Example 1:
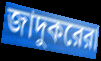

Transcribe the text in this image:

জাদুকরেরা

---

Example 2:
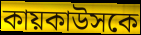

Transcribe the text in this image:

কায়কাউসকে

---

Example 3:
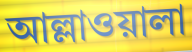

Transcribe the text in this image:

আল্লাওয়ালা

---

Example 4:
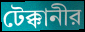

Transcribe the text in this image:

টেক্কানীর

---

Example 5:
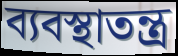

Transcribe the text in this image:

ব্যবস্থাতন্ত্র